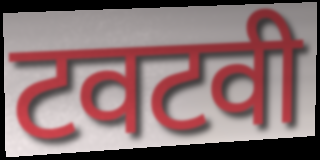
टवटवी